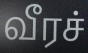
வீரச்